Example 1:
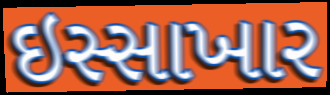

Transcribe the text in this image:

ઇસ્સાખાર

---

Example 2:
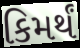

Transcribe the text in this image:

કિમર્થં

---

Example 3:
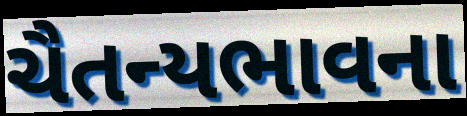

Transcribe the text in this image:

ચૈતન્યભાવના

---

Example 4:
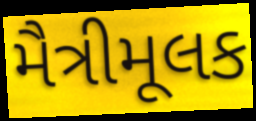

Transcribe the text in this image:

મૈત્રીમૂલક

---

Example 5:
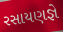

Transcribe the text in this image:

રસાયણજ્ઞે